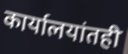
कार्यालयांतही